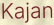
Kajan